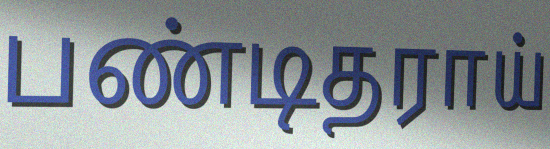
பண்டிதராய்